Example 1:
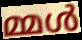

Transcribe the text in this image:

മ്മൾ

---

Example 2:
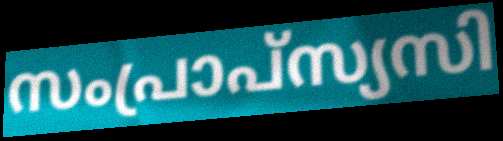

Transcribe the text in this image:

സംപ്രാപ്സ്യസി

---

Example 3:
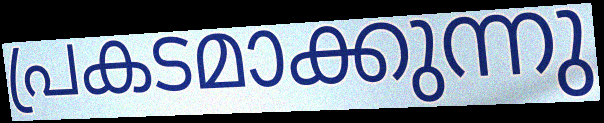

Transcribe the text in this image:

പ്രകടമാക്കുന്നു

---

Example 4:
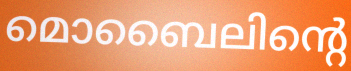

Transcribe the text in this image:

മൊബൈലിന്റെ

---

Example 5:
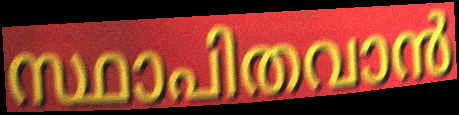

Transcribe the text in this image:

സ്ഥാപിതവാൻ